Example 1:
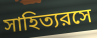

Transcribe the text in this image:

সাহিত্যরসে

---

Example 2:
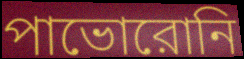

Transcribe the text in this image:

পাভোরোনি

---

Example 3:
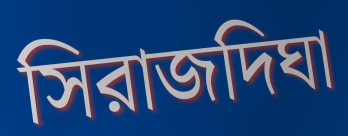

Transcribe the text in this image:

সিরাজদিঘা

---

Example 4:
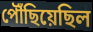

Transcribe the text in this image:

পৌঁছিয়েছিল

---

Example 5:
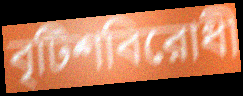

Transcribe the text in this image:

বৃটিশবিরোধী